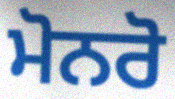
ਮੋਨਰੋ